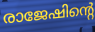
രാജേഷിന്റെ